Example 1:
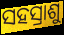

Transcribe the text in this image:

ସହସ୍ରାଶୁ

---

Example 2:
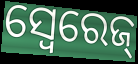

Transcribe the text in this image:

ସ୍ବେରେଜ୍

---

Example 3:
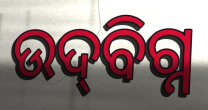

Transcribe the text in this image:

ଉଦ୍‍ବିଗ୍ନ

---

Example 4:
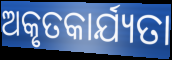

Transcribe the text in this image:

ଅକୃତକାର୍ଯ୍ୟତା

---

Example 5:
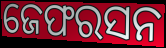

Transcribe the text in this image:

ଜେଫରସନ